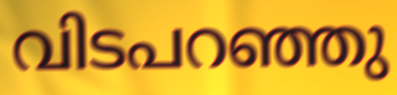
വിടപറഞ്ഞു